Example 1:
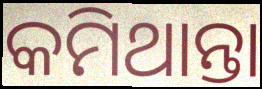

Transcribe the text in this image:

କମିଥାନ୍ତା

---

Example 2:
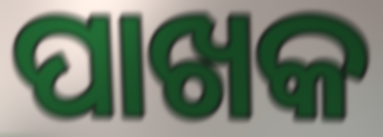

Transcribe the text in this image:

ପାଖକ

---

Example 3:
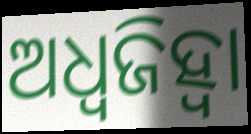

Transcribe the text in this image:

ଅଧ୍ୱଜିହ୍ବା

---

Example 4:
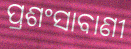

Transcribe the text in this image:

ପ୍ରଶଂସାବାଣୀ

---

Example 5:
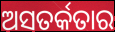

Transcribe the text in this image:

ଅସତର୍କତାର